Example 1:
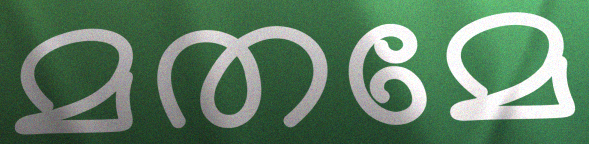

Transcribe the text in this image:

മതമേ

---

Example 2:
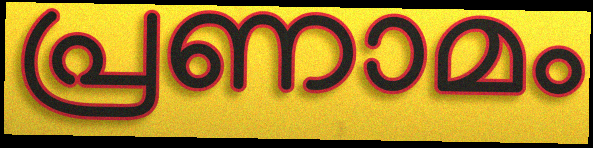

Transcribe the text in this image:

പ്രണാമം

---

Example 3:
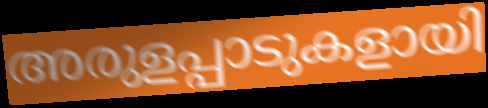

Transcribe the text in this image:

അരുളപ്പാടുകളായി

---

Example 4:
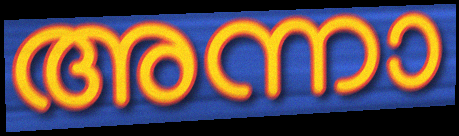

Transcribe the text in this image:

അന്നാ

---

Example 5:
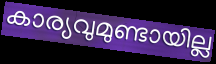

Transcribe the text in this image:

കാര്യവുമുണ്ടായില്ല